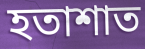
হতাশাত